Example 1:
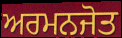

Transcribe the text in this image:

ਅਰਮਨਜੋਤ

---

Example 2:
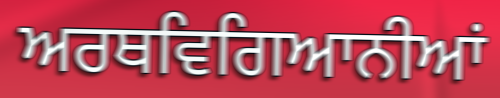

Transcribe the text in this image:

ਅਰਥਵਿਗਿਆਨੀਆਂ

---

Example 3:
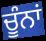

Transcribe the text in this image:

ਚੂੰਨਾਂ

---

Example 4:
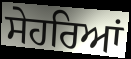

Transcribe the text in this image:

ਸੇਹਰਿਆਂ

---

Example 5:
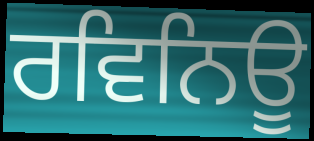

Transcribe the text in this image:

ਰਵਿਨਿਊ